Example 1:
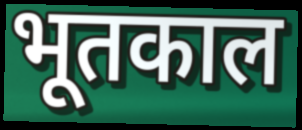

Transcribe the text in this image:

भूतकाल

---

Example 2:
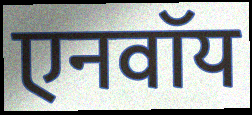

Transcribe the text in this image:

एनवॉय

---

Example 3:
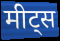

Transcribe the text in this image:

मीट्स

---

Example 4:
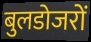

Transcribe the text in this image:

बुलडोजरों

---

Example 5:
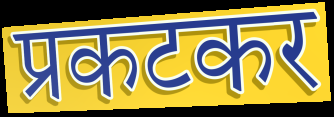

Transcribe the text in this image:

प्रकटकर